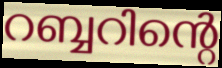
റബ്ബറിന്റെ